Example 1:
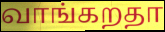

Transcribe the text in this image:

வாங்கறதா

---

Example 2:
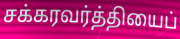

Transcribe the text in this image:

சக்கரவர்த்தியைப்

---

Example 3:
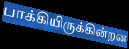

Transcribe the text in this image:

பாக்கியிருக்கின்றன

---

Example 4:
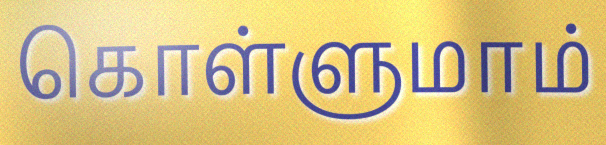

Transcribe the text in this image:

கொள்ளுமாம்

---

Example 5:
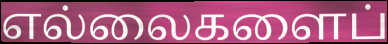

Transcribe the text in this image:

எல்லைகளைப்